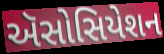
ઍસોસિયેશન